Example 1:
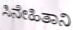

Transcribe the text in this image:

ಸಿನೇಹಿತಾನಿ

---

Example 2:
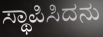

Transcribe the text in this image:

ಸ್ಥಾಪಿಸಿದನು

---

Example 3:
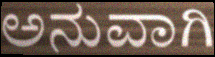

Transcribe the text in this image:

ಅನುವಾಗಿ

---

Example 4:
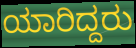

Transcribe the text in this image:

ಯಾರಿದ್ದರು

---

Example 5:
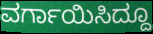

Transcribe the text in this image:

ವರ್ಗಾಯಿಸಿದ್ದೂ